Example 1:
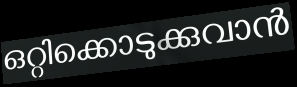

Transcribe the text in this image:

ഒറ്റിക്കൊടുക്കുവാൻ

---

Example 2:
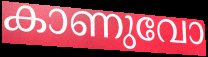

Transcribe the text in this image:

കാണുവോ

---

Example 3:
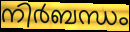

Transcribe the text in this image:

നിർബന്ധം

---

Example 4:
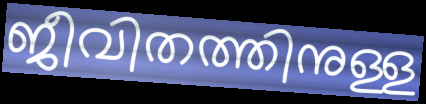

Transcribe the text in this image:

ജീവിതത്തിനുള്ള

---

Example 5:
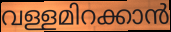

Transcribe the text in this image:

വള്ളമിറക്കാൻ